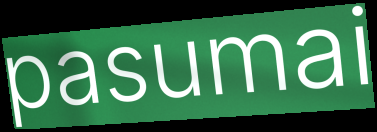
pasumai